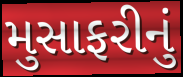
મુસાફરીનું